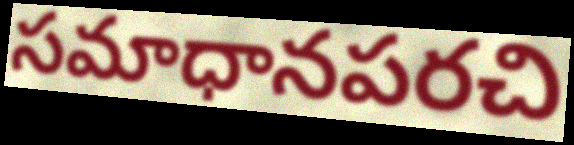
సమాధానపరచి